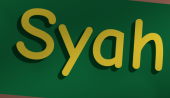
Syah